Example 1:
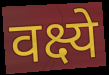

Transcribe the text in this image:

वक्ष्ये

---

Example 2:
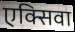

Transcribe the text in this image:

एक्सिवा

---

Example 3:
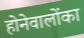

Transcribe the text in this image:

होनेवालोंका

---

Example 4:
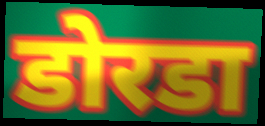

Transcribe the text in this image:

डोरडा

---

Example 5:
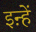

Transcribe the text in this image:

इऩ्हें